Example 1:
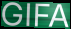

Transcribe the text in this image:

GIFA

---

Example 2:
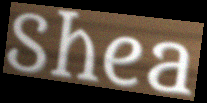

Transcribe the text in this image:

Shea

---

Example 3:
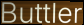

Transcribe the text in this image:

Buttler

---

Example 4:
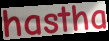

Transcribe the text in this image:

hastha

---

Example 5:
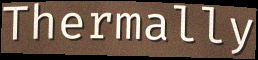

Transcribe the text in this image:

Thermally